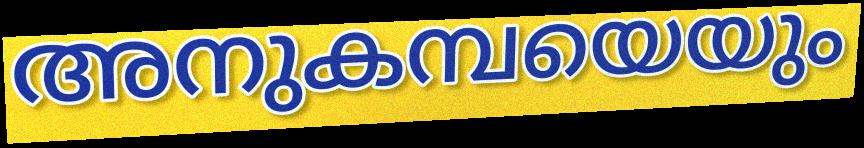
അനുകമ്പയെയും